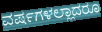
ವರ್ಷಗಳಲ್ಲಾದರೂ